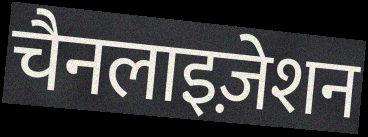
चैनलाइज़ेशन